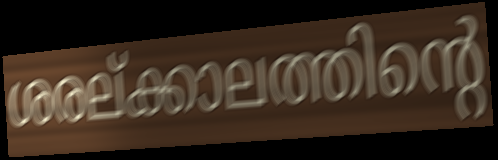
ശരല്ക്കാലത്തിന്റെ